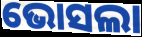
ଭୋସଲା